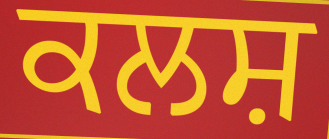
ਕਲਸ਼